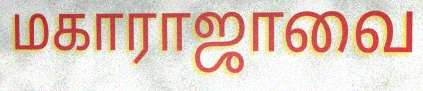
மகாராஜாவை